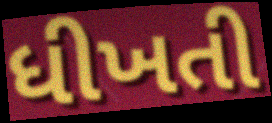
ધીખતી